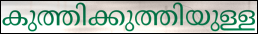
കുത്തിക്കുത്തിയുള്ള